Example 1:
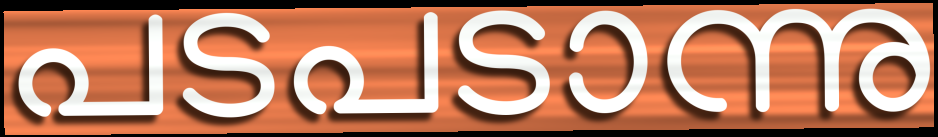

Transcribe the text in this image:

പടപടാന്നു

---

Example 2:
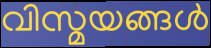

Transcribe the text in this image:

വിസ്മയങ്ങൾ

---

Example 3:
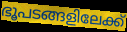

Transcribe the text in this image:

ഭൂപടങ്ങളിലേക്ക്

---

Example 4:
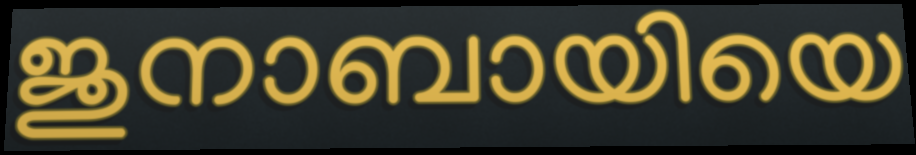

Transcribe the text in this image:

ജുനാബായിയെ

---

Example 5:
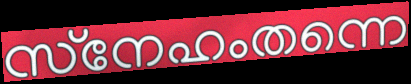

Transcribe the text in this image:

സ്‌നേഹംതന്നെ